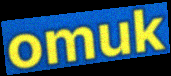
omuk